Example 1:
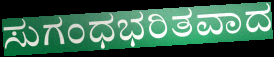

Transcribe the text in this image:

ಸುಗಂಧಭರಿತವಾದ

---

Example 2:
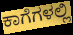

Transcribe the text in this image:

ಕಾಗೆಗಳಲ್ಲಿ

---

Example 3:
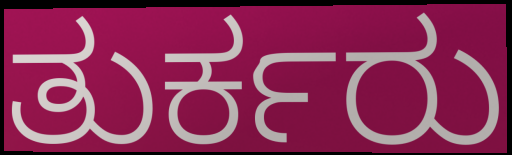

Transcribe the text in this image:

ತುರ್ಕರು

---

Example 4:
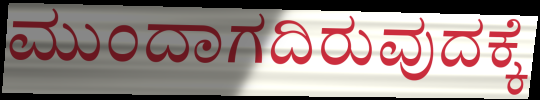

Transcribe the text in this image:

ಮುಂದಾಗದಿರುವುದಕ್ಕೆ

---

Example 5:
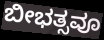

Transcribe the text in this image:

ಬೀಭತ್ಸವೂ